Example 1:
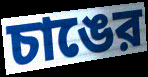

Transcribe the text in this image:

চাঙের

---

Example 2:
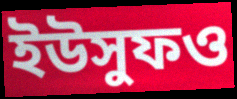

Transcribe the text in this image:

ইউসুফও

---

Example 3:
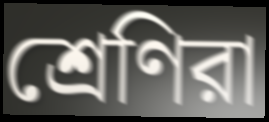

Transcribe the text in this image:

শ্রেণিরা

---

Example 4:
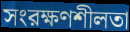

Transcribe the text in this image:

সংরক্ষণশীলতা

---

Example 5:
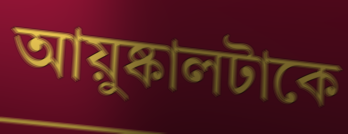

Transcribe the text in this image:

আয়ুষ্কালটাকে